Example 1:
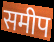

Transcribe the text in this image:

समीप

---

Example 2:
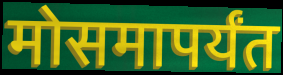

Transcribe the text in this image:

मोसमापर्यंत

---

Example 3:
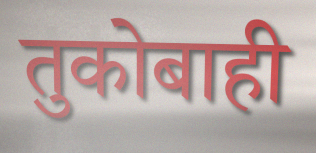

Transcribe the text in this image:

तुकोबाही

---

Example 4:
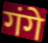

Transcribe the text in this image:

गंगे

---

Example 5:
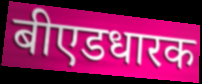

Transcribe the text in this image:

बीएडधारक